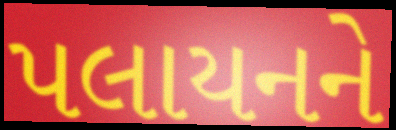
પલાયનને